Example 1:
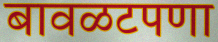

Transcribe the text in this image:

बावळटपणा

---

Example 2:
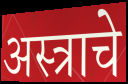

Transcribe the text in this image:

अस्त्राचे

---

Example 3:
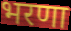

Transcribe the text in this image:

भरणा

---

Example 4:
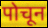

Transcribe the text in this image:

पोचून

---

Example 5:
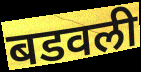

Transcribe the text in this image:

बडवली